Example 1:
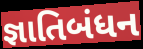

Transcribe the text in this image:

જ્ઞાતિબંધન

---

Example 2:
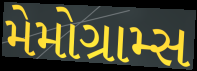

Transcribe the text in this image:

મેમોગ્રામ્સ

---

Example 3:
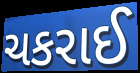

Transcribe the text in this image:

ચકરાઈ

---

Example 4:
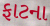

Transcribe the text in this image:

ફાટના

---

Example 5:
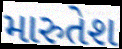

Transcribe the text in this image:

મારુતેશ